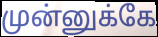
முன்னுக்கே